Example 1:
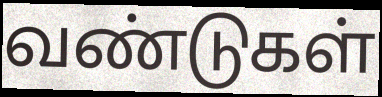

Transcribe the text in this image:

வண்டுகள்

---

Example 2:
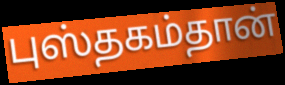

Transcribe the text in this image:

புஸ்தகம்தான்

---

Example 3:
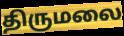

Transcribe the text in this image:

திருமலை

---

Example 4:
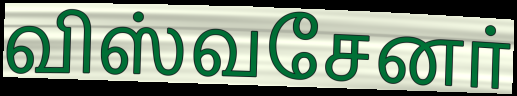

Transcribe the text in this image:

விஸ்வசேனர்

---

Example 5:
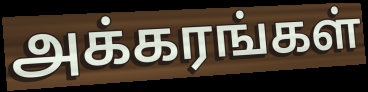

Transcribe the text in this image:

அக்கரங்கள்